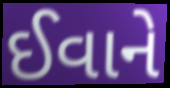
ઈવાને